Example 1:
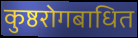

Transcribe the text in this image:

कुष्ठरोगबाधित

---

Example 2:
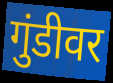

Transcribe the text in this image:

गुंडीवर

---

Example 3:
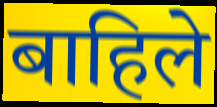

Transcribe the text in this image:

बाहिले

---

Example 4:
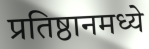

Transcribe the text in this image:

प्रतिष्ठानमध्ये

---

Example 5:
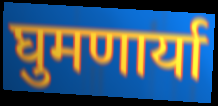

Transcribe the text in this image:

घुमणार्या